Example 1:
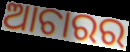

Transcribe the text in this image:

ଆଚାରର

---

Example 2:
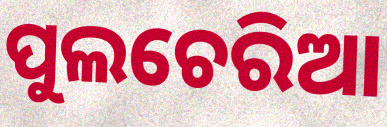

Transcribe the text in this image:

ପୁଲଚେରିଆ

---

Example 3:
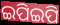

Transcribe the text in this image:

ଇପିଇପି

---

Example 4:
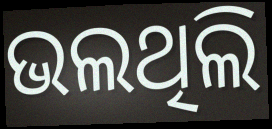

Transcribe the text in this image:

ଭଲଥିଲି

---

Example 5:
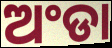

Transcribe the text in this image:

ଅଂଡା